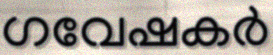
ഗവേഷകർ